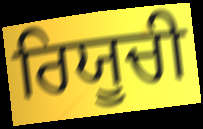
ਰਿਯੂਚੀ